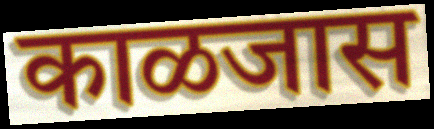
काळजास